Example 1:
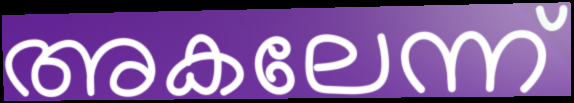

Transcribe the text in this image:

അകലേന്ന്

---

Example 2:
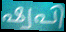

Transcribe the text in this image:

ഷ്വപി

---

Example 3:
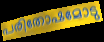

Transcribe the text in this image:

പരിതോഷമോടു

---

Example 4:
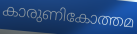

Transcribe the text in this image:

കാരുണികോത്തമ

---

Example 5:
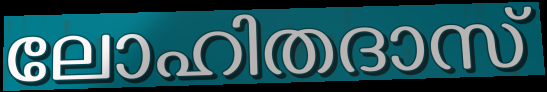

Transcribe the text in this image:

ലോഹിതദാസ്